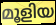
മൂളിയ